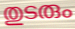
തുടരും